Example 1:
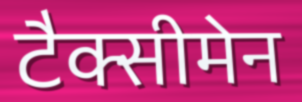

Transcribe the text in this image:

टैक्सीमेन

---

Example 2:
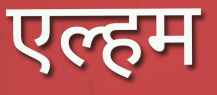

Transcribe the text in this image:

एल्हम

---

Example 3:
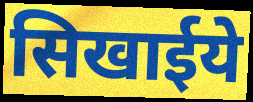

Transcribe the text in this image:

सिखाईये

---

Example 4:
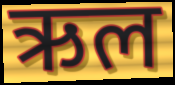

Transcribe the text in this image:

ऋल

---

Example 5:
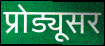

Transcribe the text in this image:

प्रोड्यूसर